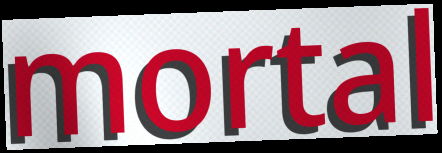
mortal